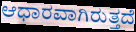
ಆಧಾರವಾಗಿರುತ್ತದೆ